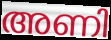
അണി